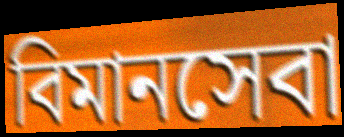
বিমানসেবা